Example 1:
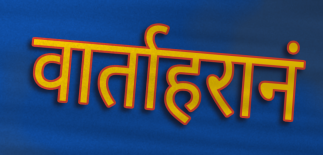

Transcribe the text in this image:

वार्ताहरानं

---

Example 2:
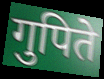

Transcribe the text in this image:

गुपिते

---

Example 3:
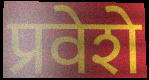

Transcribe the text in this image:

प्रवेशे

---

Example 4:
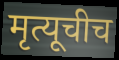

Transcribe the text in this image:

मृत्यूचीच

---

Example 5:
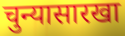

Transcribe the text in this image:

चुन्यासारखा